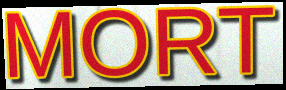
MORT